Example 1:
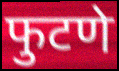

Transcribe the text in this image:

फुटणे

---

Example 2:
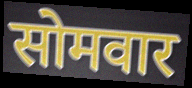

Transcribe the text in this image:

सोमवार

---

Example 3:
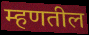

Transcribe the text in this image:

म्हणतील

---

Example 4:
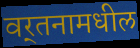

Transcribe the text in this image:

वर्तनामधील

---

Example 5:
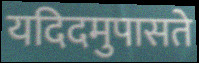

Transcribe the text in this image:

यदिदमुपासते